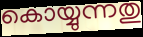
കൊയ്യുന്നതു